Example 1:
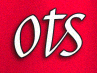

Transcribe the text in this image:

ots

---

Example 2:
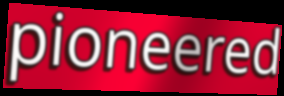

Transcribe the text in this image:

pioneered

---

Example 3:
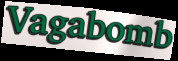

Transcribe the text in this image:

Vagabomb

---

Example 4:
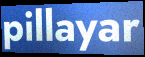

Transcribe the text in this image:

pillayar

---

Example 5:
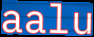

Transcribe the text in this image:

aalu